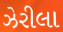
ઝેરીલા